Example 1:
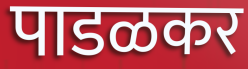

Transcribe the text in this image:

पाडळकर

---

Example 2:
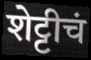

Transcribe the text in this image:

शेट्टीचं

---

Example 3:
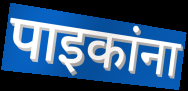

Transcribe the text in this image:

पाइकांना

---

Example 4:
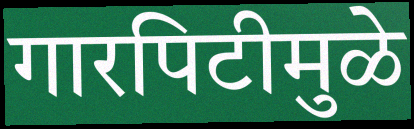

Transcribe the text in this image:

गारपिटीमुळे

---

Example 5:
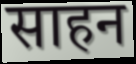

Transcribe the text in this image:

साहन